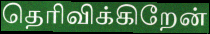
தெரிவிக்கிறேன்